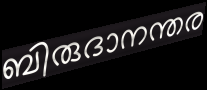
ബിരുദാനന്തര